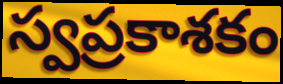
స్వప్రకాశకం